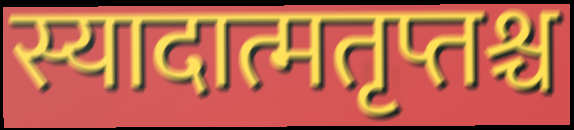
स्यादात्मतृप्तश्च